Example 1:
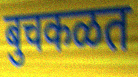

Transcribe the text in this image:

बुचकळत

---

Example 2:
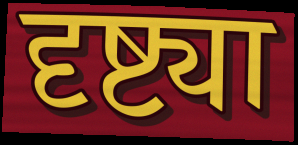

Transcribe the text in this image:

दृष्ट्या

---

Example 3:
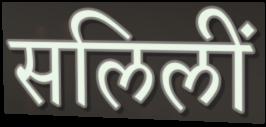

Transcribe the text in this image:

सलिलीं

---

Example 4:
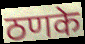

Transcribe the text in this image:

ठणके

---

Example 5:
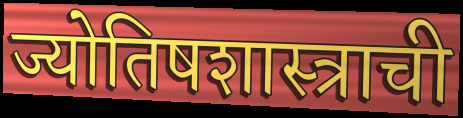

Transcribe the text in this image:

ज्योतिषशास्त्राची